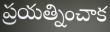
ప్రయత్నించాక